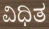
ವಿಧಿತ